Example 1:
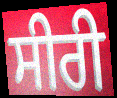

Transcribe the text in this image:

ਸੀਰੀ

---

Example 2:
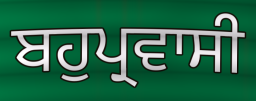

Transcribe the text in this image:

ਬਹੁਪ੍ਰਵਾਸੀ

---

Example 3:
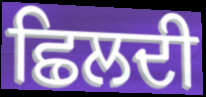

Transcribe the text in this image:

ਛਿਲਦੀ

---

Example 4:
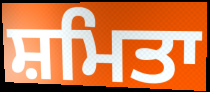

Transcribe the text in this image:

ਸ਼ਮਿਤਾ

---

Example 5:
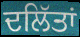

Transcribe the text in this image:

ਦਲਿੱਤਾਂ